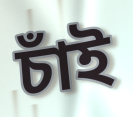
চাঁই